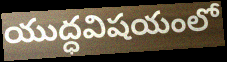
యుద్ధవిషయంలో